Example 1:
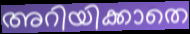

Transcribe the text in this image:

അറിയിക്കാതെ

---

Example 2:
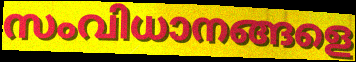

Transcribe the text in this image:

സംവിധാനങ്ങളെ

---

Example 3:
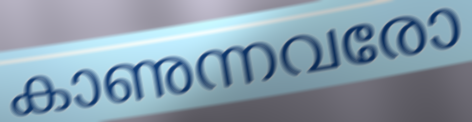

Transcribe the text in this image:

കാണുന്നവരോ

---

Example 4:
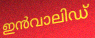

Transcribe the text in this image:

ഇൻവാലിഡ്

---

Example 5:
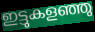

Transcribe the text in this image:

ഇട്ടുകളഞ്ഞു